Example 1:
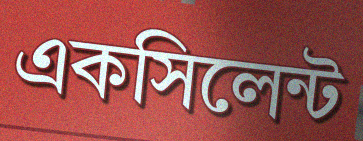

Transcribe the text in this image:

একসিলেন্ট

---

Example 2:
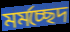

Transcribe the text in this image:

মর্মচ্ছেদ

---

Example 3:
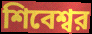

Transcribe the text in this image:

শিবেশ্বর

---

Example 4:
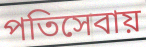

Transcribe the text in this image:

পতিসেবায়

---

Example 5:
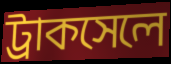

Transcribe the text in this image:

ট্রাকসেলে